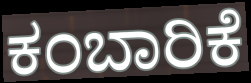
ಕಂಬಾರಿಕೆ